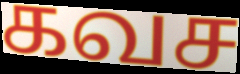
கவச